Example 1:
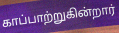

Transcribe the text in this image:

காப்பாற்றுகின்றார்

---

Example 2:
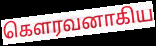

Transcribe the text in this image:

கௌரவனாகிய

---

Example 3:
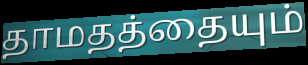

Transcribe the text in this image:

தாமதத்தையும்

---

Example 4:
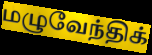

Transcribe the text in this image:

மழுவேந்திக்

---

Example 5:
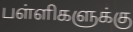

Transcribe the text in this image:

பள்ளிகளுக்கு